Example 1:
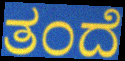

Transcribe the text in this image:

ತಂದೆ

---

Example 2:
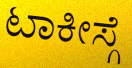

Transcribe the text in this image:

ಟಾಕೀಸ್ಗೆ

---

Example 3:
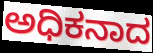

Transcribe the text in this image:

ಅಧಿಕನಾದ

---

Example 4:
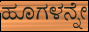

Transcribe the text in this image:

ಹೂಗಳನ್ನೇ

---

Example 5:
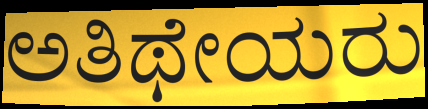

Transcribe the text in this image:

ಅತಿಥೇಯರು